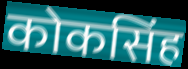
कोकसिंह